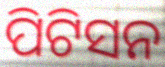
ପିଟିସନ